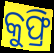
କୁଫ୍ରି